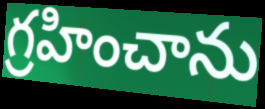
గ్రహించాను